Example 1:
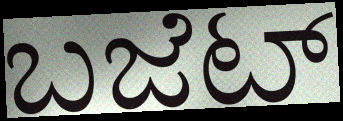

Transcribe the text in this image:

ಬಜೆಟ್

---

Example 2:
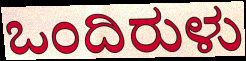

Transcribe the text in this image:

ಒಂದಿರುಳು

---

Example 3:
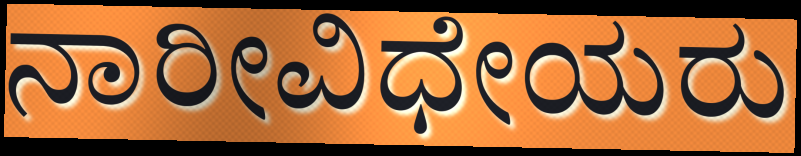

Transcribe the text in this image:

ನಾರೀವಿಧೇಯರು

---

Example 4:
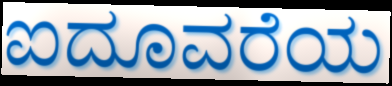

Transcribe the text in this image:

ಐದೂವರೆಯ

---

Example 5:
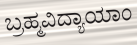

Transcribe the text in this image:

ಬ್ರಹ್ಮವಿದ್ಯಾಯಾಂ